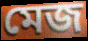
মেজ